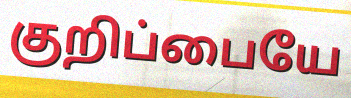
குறிப்பையே